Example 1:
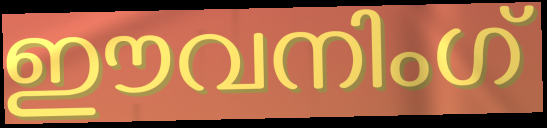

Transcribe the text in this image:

ഈവനിംഗ്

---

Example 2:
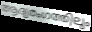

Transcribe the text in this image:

ആദ്യരംഗത്തിലും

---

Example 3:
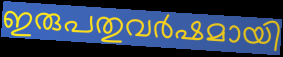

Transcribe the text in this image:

ഇരുപതുവർഷമായി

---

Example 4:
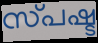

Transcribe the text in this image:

സ്‌പഷ്ട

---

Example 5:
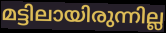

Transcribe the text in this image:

മട്ടിലായിരുന്നില്ല